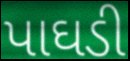
પાઘડી